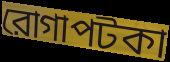
রোগাপটকা